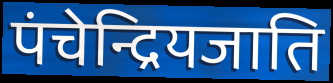
पंचेन्द्रियजाति